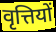
वृत्तियों